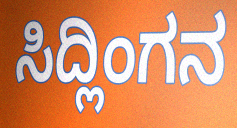
ಸಿದ್ಲಿಂಗನ